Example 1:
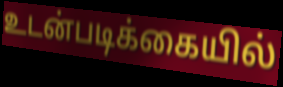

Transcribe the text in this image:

உடன்படிக்கையில்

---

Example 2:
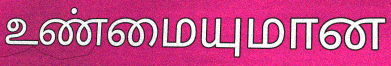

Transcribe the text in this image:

உண்மையுமான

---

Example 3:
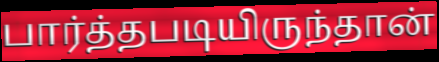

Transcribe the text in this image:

பார்த்தபடியிருந்தான்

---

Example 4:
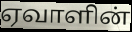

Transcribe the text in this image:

ஏவாளின்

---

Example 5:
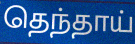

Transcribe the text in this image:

தெந்தாய்